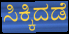
ಸಿಕ್ಕಿದಡೆ